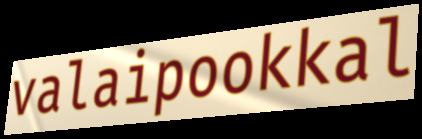
valaipookkal